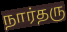
நார்தரு